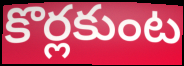
కొర్లకుంట